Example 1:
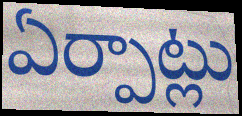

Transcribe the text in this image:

ఏర్పాట్లు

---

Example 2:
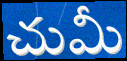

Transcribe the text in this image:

చుమీ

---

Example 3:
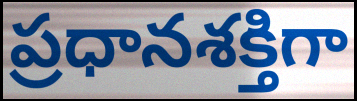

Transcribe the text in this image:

ప్రధానశక్తిగా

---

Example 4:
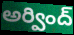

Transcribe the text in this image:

అర్వింద్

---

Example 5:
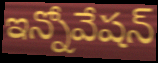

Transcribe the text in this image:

ఇన్నోవేషన్